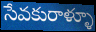
సేవకురాళ్ళూ